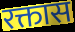
रक्तास